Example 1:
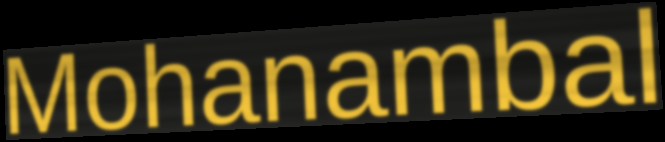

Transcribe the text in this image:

Mohanambal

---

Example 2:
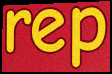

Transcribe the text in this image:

rep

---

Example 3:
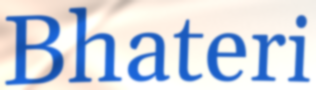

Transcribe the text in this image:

Bhateri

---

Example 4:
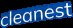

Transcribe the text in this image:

cleanest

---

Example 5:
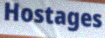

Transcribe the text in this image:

Hostages